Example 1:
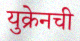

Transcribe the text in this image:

युक्रेनची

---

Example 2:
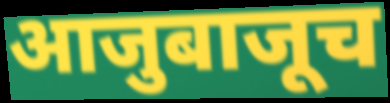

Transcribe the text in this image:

आजुबाजूच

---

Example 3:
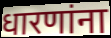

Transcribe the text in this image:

धारणांना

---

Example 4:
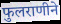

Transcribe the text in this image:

फुलराणीने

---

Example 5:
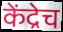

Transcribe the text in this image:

केंद्रेच